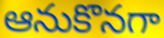
ఆనుకొనగా